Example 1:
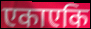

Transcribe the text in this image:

एकाएकि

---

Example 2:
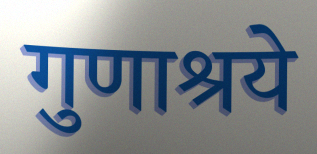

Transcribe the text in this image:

गुणाश्रये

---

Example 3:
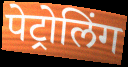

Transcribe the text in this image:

पेट्रोलिंग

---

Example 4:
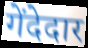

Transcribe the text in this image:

गेंदेदार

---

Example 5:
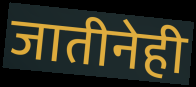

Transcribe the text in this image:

जातीनेही